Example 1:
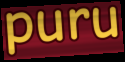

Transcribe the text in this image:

puru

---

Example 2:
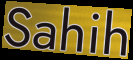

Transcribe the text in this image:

Sahih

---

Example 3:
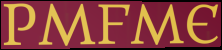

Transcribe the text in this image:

PMFME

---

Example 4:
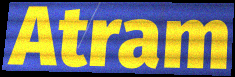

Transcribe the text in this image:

Atram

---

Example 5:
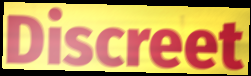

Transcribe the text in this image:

Discreet